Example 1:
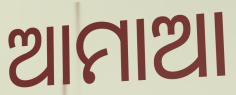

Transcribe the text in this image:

ଆମାଆ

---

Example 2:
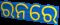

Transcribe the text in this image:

ରନରେ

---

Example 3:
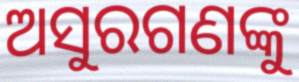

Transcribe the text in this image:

ଅସୁରଗଣଙ୍କୁ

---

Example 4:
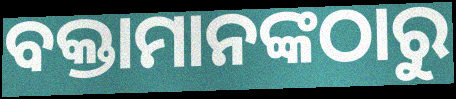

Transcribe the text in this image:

ବକ୍ତାମାନଙ୍କଠାରୁ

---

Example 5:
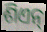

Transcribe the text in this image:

ଶିଏନ୍